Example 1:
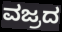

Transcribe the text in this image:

ವಜ್ರದ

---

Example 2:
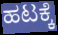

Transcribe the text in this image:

ಹಟಕ್ಕೆ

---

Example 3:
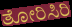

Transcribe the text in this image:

ತೋರಿಸಿರಿ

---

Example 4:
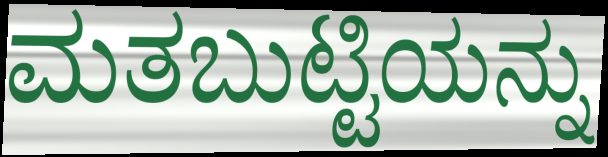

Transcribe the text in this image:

ಮತಬುಟ್ಟಿಯನ್ನು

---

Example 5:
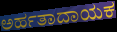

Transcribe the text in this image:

ಅರ್ಹತಾದಾಯಕ